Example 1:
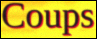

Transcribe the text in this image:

Coups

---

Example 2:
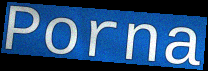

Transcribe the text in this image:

Porna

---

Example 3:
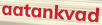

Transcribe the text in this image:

aatankvad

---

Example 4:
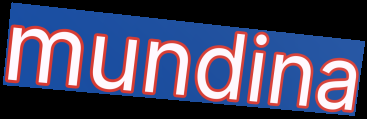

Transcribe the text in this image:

mundina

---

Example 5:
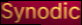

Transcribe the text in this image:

Synodic